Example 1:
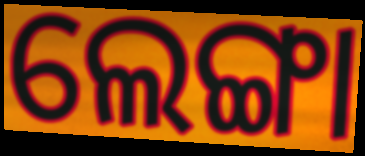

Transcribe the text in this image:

ଲେଙ୍ଗା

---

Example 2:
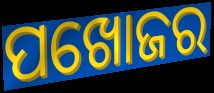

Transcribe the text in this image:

ପଖୋଜର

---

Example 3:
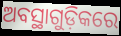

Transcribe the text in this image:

ଅବସ୍ଥାଗୁଡ଼ିକରେ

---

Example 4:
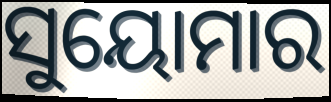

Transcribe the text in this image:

ସୁୟୋମାର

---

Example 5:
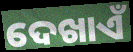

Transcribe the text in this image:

ଦେଖାଏଁ